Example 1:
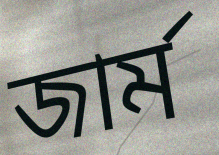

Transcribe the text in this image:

জার্ম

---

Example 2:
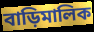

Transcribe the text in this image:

বাড়িমালিক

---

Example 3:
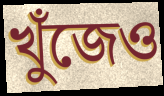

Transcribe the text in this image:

খুঁজেও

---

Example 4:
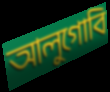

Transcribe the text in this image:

আলুগোবি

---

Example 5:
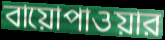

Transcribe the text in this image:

বায়োপাওয়ার